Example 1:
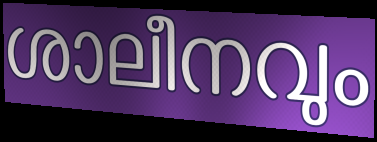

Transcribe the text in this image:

ശാലീനവും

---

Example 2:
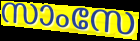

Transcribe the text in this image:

സാംസേ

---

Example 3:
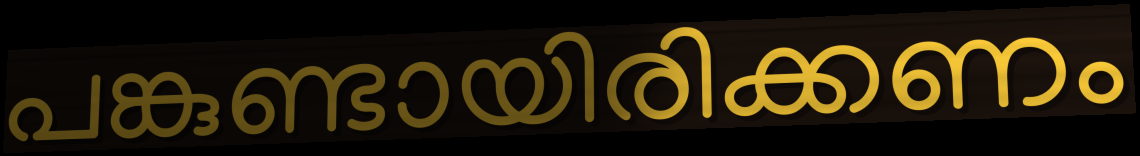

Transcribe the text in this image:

പങ്കുണ്ടായിരിക്കണം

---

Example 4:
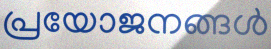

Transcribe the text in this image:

പ്രയോജനങ്ങൾ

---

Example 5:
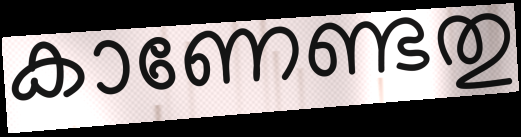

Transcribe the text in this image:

കാണേണ്ടതു